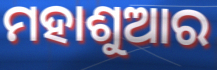
ମହାଶୁଆର